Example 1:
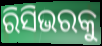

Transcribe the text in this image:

ରିସିଭରକୁ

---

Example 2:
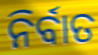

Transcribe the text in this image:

ନିର୍ବାତ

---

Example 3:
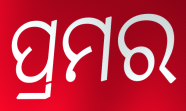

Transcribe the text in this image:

ପ୍ରମର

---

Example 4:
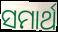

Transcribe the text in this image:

ସମାର୍ଥ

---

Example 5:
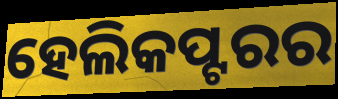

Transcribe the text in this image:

ହେଲିକପ୍ଟରର